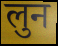
लुन